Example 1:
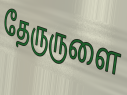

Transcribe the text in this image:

தேருருளை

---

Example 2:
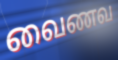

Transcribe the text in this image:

வைணவ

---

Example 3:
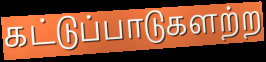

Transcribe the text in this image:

கட்டுப்பாடுகளற்ற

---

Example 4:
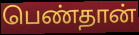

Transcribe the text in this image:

பெண்தான்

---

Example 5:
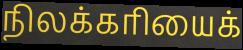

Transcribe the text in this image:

நிலக்கரியைக்